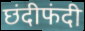
छंदीफंदी